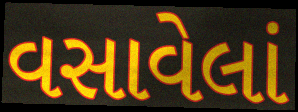
વસાવેલાં